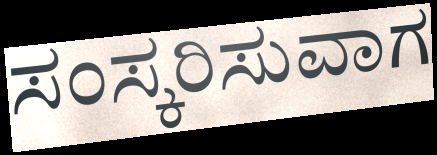
ಸಂಸ್ಕರಿಸುವಾಗ